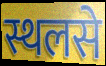
स्थलसे